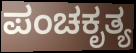
ಪಂಚಕೃತ್ಯ